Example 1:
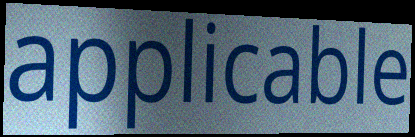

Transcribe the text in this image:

applicable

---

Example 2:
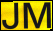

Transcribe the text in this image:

JM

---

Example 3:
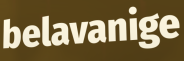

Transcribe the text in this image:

belavanige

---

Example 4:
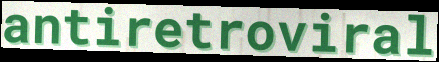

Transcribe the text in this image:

antiretroviral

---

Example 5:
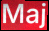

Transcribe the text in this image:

Maj